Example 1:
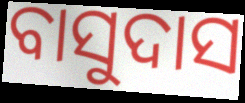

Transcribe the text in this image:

ବାସୁଦାସ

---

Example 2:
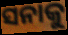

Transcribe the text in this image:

ସନାକୁ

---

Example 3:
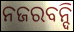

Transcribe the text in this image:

ନଜରବନ୍ଦି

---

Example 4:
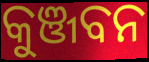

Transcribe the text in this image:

କୁଞ୍ଜବନ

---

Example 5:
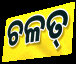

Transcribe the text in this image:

ଚଳତ୍